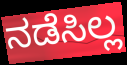
ನಡೆಸಿಲ್ಲ